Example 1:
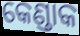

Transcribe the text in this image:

କେଣ୍ଡାକ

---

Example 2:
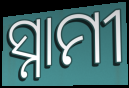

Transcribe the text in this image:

ସ୍ନାମୀ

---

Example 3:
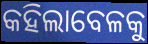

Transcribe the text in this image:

କହିଲାବେଳକୁ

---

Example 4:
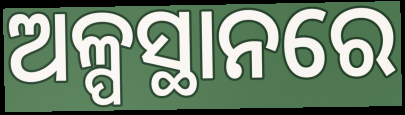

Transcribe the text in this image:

ଅଳ୍ପସ୍ଥାନରେ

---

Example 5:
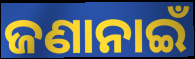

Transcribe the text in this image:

ଜଣାନାଇଁ